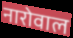
नारोवाल